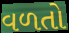
વળતો